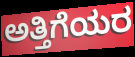
ಅತ್ತಿಗೆಯರ